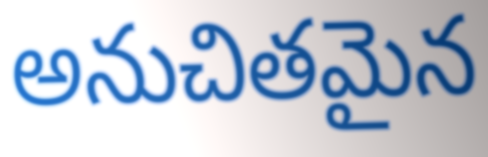
అనుచితమైన